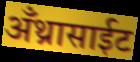
अँथ्रासाईट